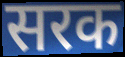
सरक